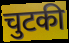
चुटकी